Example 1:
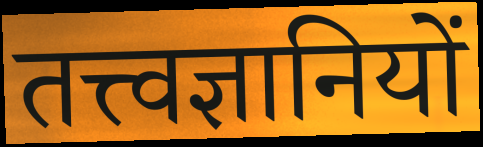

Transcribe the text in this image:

तत्त्वज्ञानियों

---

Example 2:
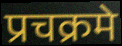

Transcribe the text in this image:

प्रचक्रमे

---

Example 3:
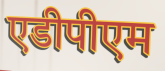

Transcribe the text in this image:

एडीपीएम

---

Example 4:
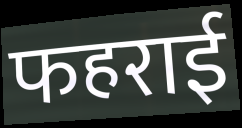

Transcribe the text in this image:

फहराई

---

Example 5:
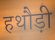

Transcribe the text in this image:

हथौड़ी